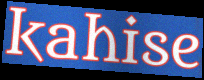
kahise